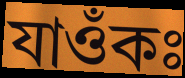
যাওঁকঃ